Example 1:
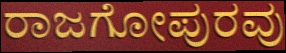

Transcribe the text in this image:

ರಾಜಗೋಪುರವು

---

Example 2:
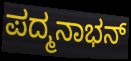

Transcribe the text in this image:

ಪದ್ಮನಾಭನ್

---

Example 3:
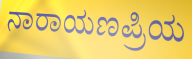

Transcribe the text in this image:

ನಾರಾಯಣಪ್ರಿಯ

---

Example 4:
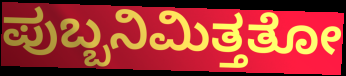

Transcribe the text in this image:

ಪುಬ್ಬನಿಮಿತ್ತತೋ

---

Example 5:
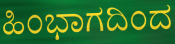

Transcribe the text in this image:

ಹಿಂಭಾಗದಿಂದ